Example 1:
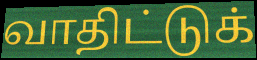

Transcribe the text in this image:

வாதிட்டுக்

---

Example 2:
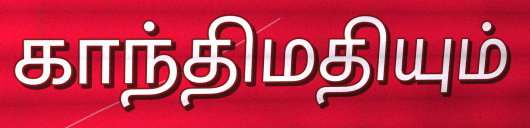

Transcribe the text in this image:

காந்திமதியும்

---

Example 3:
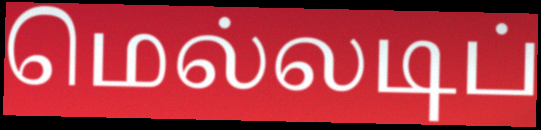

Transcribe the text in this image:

மெல்லடிப்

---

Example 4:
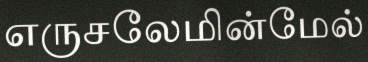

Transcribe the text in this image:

எருசலேமின்மேல்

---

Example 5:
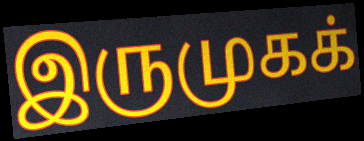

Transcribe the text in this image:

இருமுகக்